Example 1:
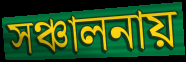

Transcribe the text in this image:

সঞ্চালনায়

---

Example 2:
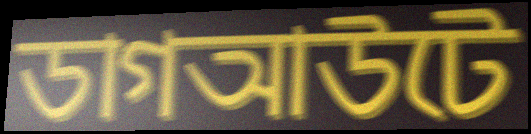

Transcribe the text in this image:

ডাগআউটে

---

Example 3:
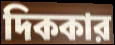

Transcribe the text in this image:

দিককার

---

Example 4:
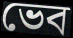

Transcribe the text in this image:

ভেব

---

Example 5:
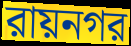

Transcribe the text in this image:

রায়নগর